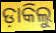
ଡ଼ାକିଲୁ